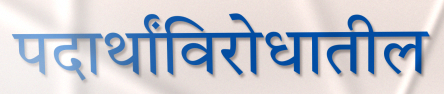
पदार्थांविरोधातील